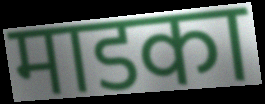
माडका